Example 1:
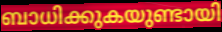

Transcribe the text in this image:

ബാധിക്കുകയുണ്ടായി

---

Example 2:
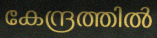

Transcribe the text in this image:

കേന്ദ്രത്തിൽ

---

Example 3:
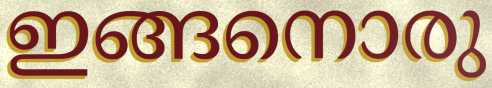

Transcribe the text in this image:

ഇങ്ങനൊരു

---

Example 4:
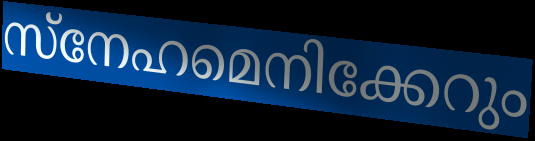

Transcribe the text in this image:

സ്നേഹമെനിക്കേറും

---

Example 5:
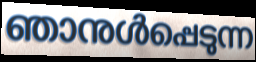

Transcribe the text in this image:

ഞാനുൾപ്പെടുന്ന